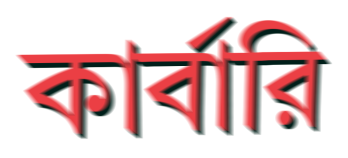
কার্বারি